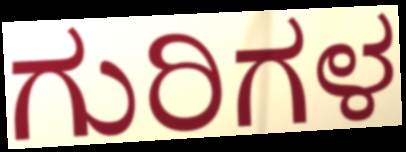
ಗುರಿಗಳ